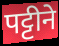
पट्टीने